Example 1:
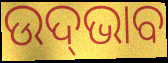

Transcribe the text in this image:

ଉଦ୍‍ଭାବ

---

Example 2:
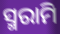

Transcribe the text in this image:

ସ୍ମରାମି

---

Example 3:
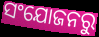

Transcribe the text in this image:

ସଂଯୋଜନରୁ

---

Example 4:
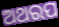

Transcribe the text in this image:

ଅଥରପ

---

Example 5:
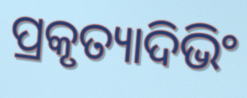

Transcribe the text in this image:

ପ୍ରକୃତ୍ୟାଦିଭିଂ